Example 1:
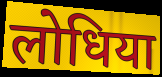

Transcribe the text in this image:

लोधिया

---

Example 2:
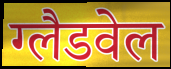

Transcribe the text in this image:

ग्लैडवेल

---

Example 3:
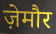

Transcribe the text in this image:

ज़ेमौर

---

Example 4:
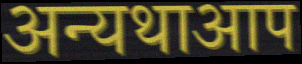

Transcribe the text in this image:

अन्यथाआप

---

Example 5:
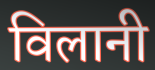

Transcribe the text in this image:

विलानी